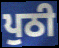
ਪੁਠੀ